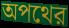
অপথের